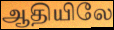
ஆதியிலே